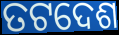
ତଟଦେଶ